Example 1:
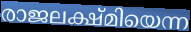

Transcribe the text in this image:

രാജലക്ഷ്മിയെന്ന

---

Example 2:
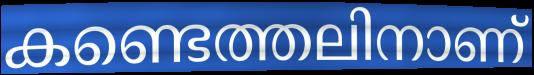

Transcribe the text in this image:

കണ്ടെത്തലിനാണ്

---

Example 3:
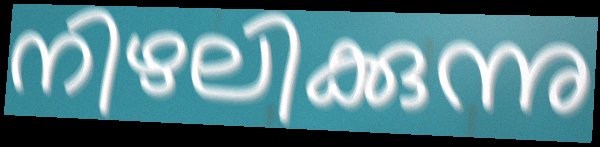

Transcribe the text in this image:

നിഴലിക്കുന്നു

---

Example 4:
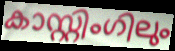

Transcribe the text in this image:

കാസ്റ്റിംഗിലും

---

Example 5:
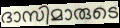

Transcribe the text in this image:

ദാസിമാരുടെ